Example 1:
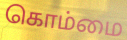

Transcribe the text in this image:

கொம்மை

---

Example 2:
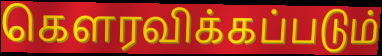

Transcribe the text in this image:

கௌரவிக்கப்படும்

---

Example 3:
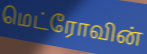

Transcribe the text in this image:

மெட்ரோவின்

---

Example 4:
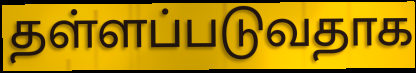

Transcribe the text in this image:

தள்ளப்படுவதாக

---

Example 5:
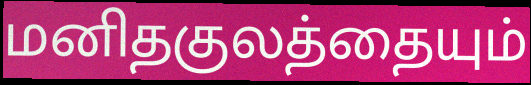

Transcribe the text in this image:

மனிதகுலத்தையும்